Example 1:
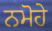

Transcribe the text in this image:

ਨਮੋਹੇ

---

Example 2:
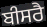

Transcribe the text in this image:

ਬੀਸਰੈ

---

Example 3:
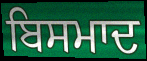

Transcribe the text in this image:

ਬਿਸਮਾਦ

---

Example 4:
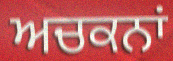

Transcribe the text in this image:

ਅਚਕਨਾਂ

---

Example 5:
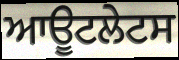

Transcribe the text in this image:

ਆਊਟਲੇਟਸ